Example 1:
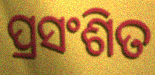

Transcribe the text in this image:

ପ୍ରସଂଶିତ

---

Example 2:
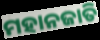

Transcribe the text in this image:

ମହାନଜାତି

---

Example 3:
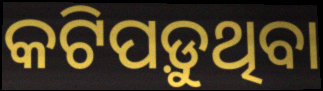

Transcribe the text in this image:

କଟିପଡ଼ୁଥିବା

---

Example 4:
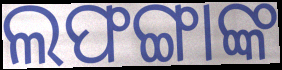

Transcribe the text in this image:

ଲଫଙ୍ଗାଙ୍କ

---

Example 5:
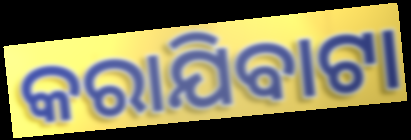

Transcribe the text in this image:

କରାଯିବାଟା